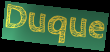
Duque